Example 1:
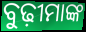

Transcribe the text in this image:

ବୁଢ଼ୀମାଙ୍କ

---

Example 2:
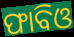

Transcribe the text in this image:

ଫାବିଓ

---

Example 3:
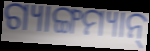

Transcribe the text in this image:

ଗ୍ୟାଙ୍ଗମ୍ୟାନ୍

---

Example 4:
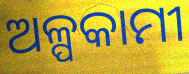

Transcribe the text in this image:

ଅଳ୍ପକାମୀ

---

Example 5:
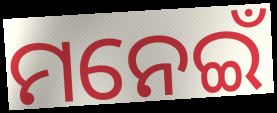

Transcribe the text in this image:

ମନେଇଁ